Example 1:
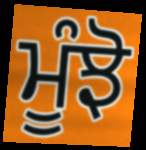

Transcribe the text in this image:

ਮੂੰਝੋ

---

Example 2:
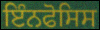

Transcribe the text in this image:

ਇੰਨਫੋਸਿਸ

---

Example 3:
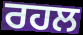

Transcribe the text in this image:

ਰਹਲ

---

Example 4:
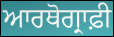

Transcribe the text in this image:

ਆਰਥੋਗ੍ਰਾਫ਼ੀ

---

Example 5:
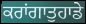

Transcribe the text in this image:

ਕਰਾਂਗਾਤੁਹਾਡੇ